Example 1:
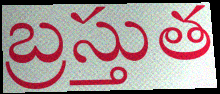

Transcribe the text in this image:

బ్రస్తుత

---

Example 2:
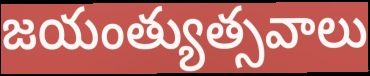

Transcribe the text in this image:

జయంత్యుత్సవాలు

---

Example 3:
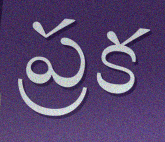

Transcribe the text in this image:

ప్రక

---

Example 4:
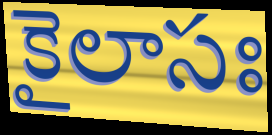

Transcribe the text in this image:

కైలాసః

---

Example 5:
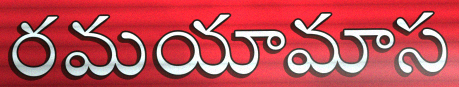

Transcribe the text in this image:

రమయామాస